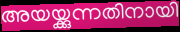
അയയ്ക്കുന്നതിനായി